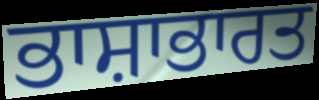
ਭਾਸ਼ਾਭਾਰਤ